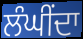
ਲੰਘੀਂਦਾ